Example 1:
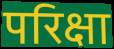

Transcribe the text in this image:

परिक्षा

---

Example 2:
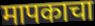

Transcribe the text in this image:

मापकाचा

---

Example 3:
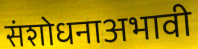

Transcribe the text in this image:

संशोधनाअभावी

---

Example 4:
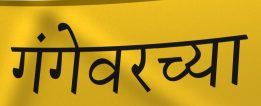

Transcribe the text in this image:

गंगेवरच्या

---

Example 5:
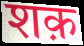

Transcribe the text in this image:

शक़